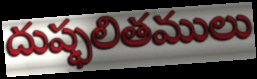
దుష్ఫలితములు